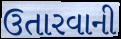
ઉતારવાની